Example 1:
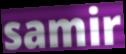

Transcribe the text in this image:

samir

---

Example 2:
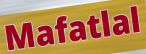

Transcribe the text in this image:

Mafatlal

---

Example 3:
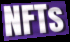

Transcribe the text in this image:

NFTs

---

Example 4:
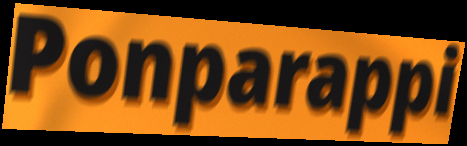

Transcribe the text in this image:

Ponparappi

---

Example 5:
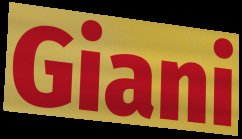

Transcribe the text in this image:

Giani